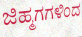
ಜಿಹ್ಮಗಗಳಿಂದ